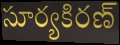
సూర్యకిరణ్